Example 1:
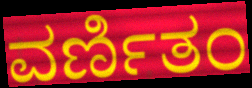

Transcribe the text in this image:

ವರ್ಣಿತಂ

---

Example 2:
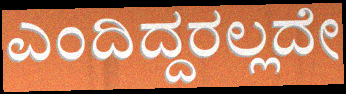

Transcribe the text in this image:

ಎಂದಿದ್ದರಲ್ಲದೇ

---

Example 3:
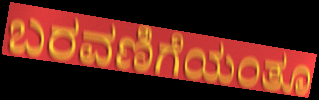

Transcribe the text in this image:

ಬರವಣಿಗೆಯಂತೂ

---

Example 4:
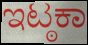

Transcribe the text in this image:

ಇಟ್ಠಕಾ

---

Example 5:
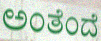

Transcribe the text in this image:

ಅಂತೆಂದೆ